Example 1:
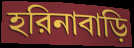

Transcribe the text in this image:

হরিনাবাড়ি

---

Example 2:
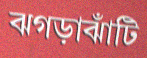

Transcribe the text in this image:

ঝগড়াঝাঁটি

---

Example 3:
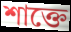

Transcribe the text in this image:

শাক্তে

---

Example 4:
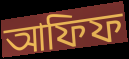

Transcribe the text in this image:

আফিফ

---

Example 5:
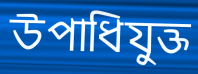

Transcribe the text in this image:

উপাধিযুক্ত